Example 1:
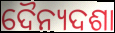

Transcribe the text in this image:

ଦୈନ୍ୟଦଶା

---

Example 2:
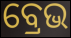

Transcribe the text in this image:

ବ୍ରେଭ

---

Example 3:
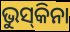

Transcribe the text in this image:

ଭୁସ୍‌କିନା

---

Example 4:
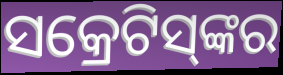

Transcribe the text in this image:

ସକ୍ରେଟିସ୍‌ଙ୍କର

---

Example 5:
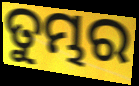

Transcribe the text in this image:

ତୁମ୍ଭର